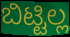
ಬಿಟ್ಟಿಲ್ಲ